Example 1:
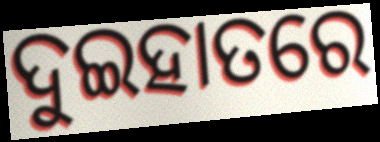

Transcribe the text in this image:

ଦୁଇହାତରେ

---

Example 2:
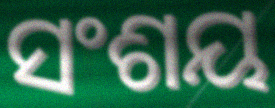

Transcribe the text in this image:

ସଂଶୟ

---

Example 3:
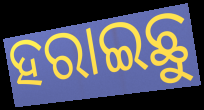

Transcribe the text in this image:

ହରାଇଛୁ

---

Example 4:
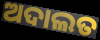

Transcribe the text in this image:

ଅଦାଲତ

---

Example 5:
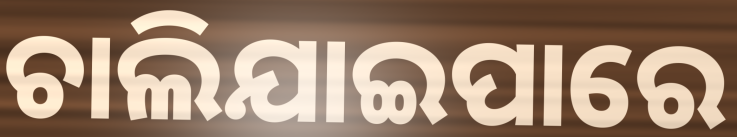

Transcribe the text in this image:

ଚାଲିଯାଇପାରେ